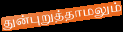
துன்புறுத்தாமலும்